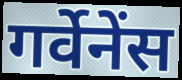
गर्वेनेंस